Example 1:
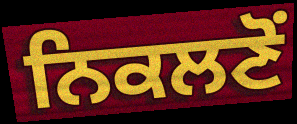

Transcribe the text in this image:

ਨਿਕਲਣੋਂ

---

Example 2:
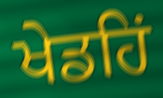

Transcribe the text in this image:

ਖੇਡਹਿਂ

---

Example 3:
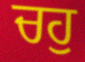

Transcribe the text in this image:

ਚਹੁ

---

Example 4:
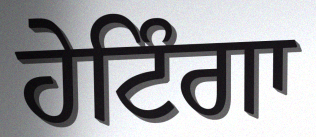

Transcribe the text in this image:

ਹੇਟਿੰਗਾ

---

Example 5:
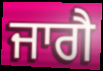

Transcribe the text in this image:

ਜਾਗੈ